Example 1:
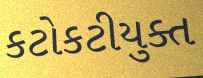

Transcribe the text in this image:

કટોકટીયુક્ત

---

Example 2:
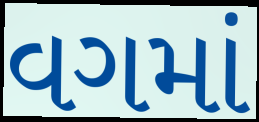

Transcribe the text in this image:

વગમાં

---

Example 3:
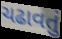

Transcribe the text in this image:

ચઢાવતું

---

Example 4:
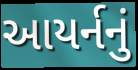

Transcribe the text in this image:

આયર્નનું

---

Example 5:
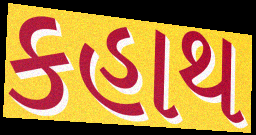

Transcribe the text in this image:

કહાથ